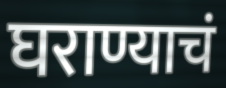
घराण्याचं